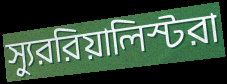
স্যুররিয়ালিস্টরা